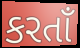
કરતાઁ